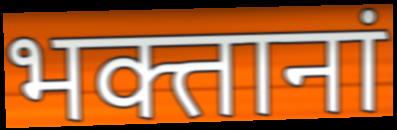
भक्तानां